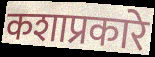
कशाप्रकारे